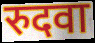
रुदवा